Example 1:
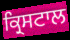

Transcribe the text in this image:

ਕ੍ਰਿਸਟਾਲ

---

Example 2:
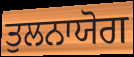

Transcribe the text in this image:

ਤੁਲਨਾਯੋਗ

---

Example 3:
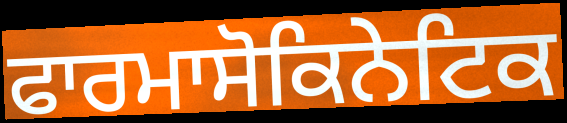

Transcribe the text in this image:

ਫਾਰਮਾਸੋਕਿਨੇਟਿਕ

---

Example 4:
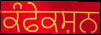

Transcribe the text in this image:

ਕੰਫੇਕਸ਼ਨ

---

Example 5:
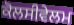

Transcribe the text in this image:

ਕੋਲਸੀਵੇਲਮ